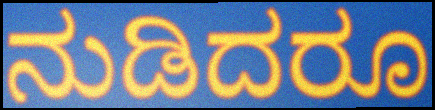
ನುಡಿದರೂ